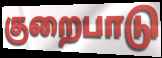
குறைபாடு